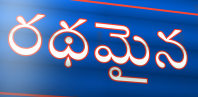
రథమైన